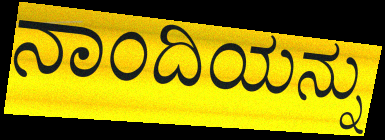
ನಾಂದಿಯನ್ನು